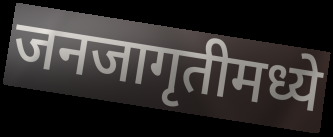
जनजागृतीमध्ये